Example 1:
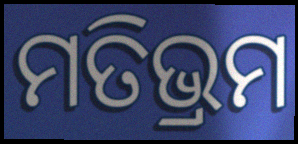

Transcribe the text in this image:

ମତିଭ୍ରମ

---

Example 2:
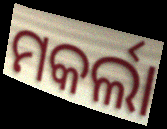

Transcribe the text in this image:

ମକର୍ଲା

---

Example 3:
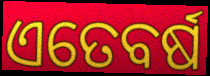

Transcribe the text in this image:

ଏତେବର୍ଷ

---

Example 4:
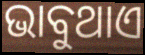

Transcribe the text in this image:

ଭାବୁଥାଏ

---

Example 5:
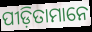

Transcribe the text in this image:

ପୀଡ଼ିତାମାନେ